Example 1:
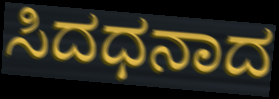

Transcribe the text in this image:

ಸಿದಧನಾದ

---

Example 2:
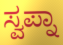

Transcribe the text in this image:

ಸ್ವಪ್ನಾ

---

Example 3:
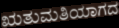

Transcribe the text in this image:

ಋತುಮತಿಯಾಗದ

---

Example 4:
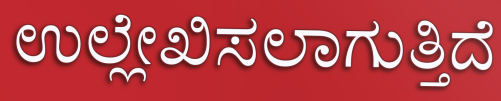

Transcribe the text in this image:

ಉಲ್ಲೇಖಿಸಲಾಗುತ್ತಿದೆ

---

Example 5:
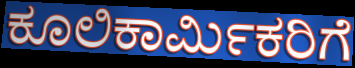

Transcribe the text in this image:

ಕೂಲಿಕಾರ್ಮಿಕರಿಗೆ